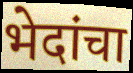
भेदांचा